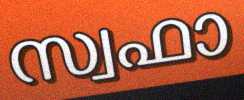
സ്വഫാ